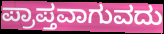
ಪ್ರಾಪ್ತವಾಗುವದು